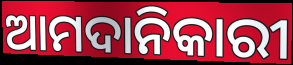
ଆମଦାନିକାରୀ